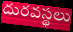
దురవస్థలు